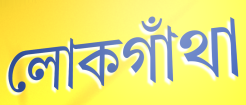
লোকগাঁথা